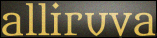
alliruva